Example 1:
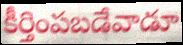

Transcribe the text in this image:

కీర్తింపబడేవాడూ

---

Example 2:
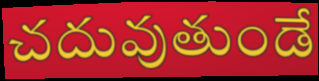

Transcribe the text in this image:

చదువుతుండే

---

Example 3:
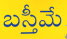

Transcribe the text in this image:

బస్తీమే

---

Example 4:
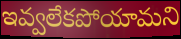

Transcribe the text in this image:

ఇవ్వలేకపోయామని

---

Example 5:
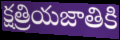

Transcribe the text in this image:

క్షత్రియజాతికి